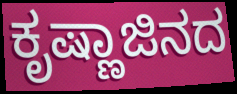
ಕೃಷ್ಣಾಜಿನದ